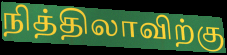
நித்திலாவிற்கு